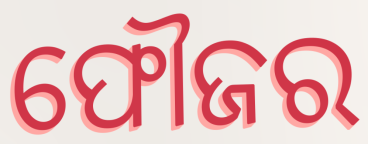
ଫୌଜର